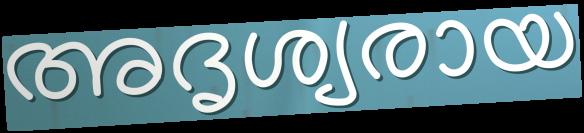
അദൃശ്യരായ